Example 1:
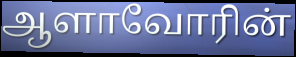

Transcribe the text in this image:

ஆளாவோரின்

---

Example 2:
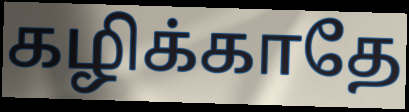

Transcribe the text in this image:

கழிக்காதே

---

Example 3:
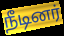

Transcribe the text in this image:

நீடினர்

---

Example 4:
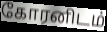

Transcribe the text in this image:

கோரனிடம்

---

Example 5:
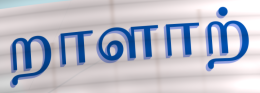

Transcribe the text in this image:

றாளாற்